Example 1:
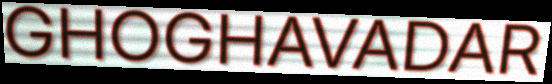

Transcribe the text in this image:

GHOGHAVADAR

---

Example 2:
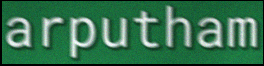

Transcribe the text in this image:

arputham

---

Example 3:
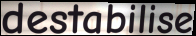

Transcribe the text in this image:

destabilise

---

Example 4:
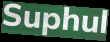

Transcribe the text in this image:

Suphul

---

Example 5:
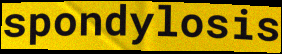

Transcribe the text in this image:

spondylosis